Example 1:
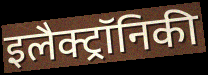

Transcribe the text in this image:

इलैक्ट्रॉनिकी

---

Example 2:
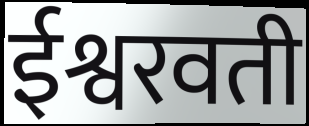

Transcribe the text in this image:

ईश्वरवती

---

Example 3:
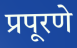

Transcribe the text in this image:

प्रपूरणे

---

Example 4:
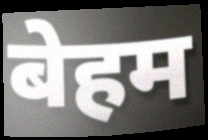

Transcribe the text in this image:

बेहम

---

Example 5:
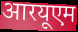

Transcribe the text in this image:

आरयूएम